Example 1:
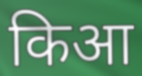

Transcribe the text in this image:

किआ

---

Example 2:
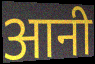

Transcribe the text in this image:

आनी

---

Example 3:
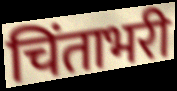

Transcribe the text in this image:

चिंताभरी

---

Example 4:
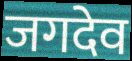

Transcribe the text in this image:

जगदेव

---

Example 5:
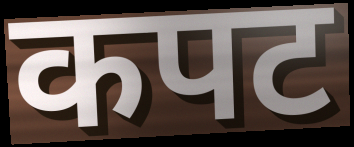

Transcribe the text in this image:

कपट